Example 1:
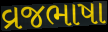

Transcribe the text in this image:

વ્રજભાષા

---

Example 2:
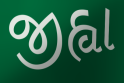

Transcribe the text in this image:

જીહ્વા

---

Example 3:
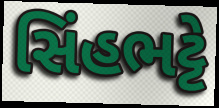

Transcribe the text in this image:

સિંહભટ્ટે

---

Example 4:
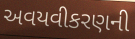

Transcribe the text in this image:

અવયવીકરણની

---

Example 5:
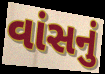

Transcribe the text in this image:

વાંસનું